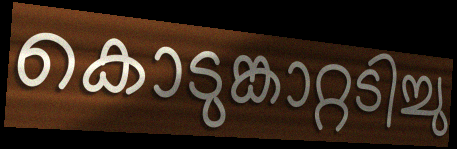
കൊടുങ്കാറ്റടിച്ചു